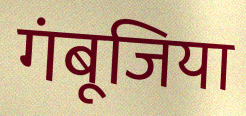
गंबूजिया